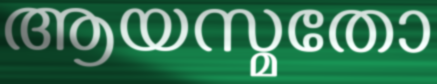
ആയസ്മതോ